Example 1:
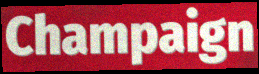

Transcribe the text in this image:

Champaign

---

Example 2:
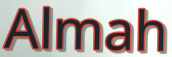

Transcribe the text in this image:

Almah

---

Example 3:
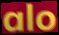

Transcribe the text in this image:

alo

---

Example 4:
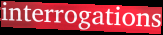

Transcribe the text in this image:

interrogations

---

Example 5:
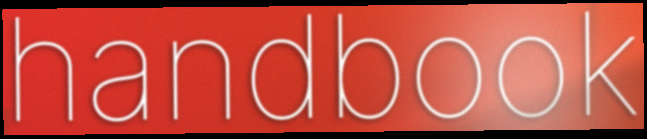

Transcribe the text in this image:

handbook